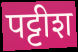
पट्टीश